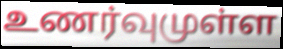
உணர்வுமுள்ள